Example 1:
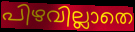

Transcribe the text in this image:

പിഴവില്ലാതെ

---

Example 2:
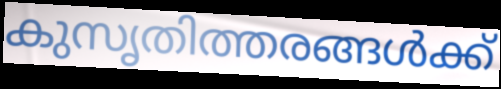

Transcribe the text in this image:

കുസൃതിത്തരങ്ങൾക്ക്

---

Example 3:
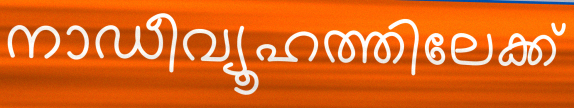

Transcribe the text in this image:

നാഡീവ്യൂഹത്തിലേക്ക്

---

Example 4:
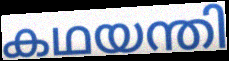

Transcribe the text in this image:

കഥയന്തി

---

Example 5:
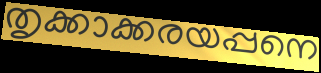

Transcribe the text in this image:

തൃക്കാക്കരയപ്പനെ